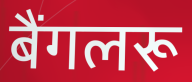
बैंगलरू